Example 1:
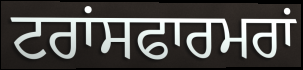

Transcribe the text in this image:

ਟਰਾਂਸਫਾਰਮਰਾਂ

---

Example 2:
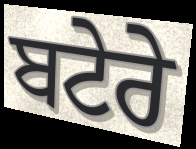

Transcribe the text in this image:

ਬਟੇਰੇ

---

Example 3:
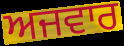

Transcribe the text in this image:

ਅਜਵਾਰ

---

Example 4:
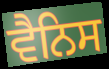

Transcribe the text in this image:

ਵੈਨਿਸ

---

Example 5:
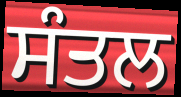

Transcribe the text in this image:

ਸੰਤਲ